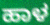
ಹಾಳ